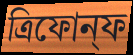
ত্রিফোন্ফ